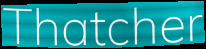
Thatcher